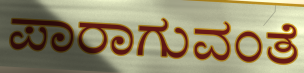
ಪಾರಾಗುವಂತೆ